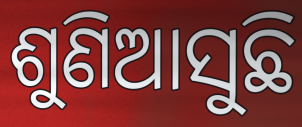
ଶୁଣିଆସୁଛି